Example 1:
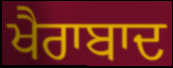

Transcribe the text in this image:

ਖੈਰਾਬਾਦ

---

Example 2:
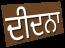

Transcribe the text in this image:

ਦੀਦਨਾ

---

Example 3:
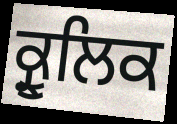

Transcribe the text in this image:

ਕ੍ਰੂਲਿਕ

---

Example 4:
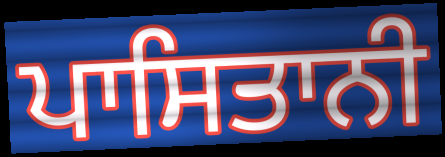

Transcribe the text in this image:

ਪਾਸਿਤਾਨੀ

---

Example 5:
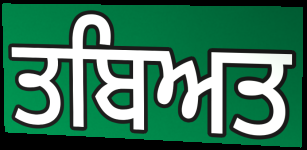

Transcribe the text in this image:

ਤਬਿਅਤ